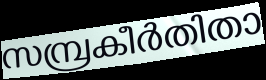
സമ്പ്രകീർതിതാ